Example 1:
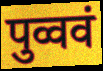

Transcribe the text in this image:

पुव्ववं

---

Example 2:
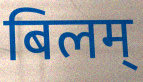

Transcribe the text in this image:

बिलम्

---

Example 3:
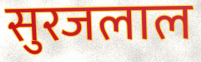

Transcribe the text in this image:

सुरजलाल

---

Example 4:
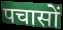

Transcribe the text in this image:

पचासों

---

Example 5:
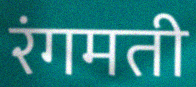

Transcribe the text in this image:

रंगमती